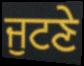
ਜੁਟਣੇ